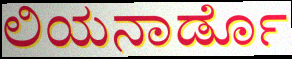
ಲಿಯನಾರ್ಡೊ